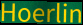
Hoerlin